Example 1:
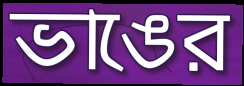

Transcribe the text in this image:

ভাঙের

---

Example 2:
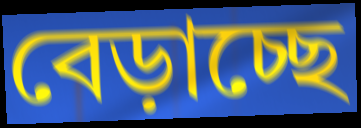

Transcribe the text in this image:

বেড়াচ্ছে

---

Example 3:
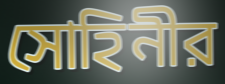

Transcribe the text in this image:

সোহিনীর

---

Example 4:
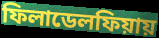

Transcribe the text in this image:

ফিলাডেলফিয়ায়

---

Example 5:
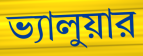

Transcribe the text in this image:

ভ্যালুয়ার